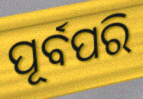
ପୂର୍ବପରି